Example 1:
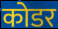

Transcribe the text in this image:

कोडर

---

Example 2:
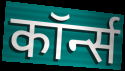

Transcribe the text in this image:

कॉर्न्स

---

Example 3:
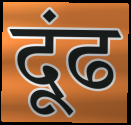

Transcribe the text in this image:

दूंढ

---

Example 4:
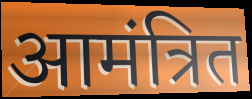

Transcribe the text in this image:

आमंत्रित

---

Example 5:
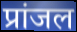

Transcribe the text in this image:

प्रांजल